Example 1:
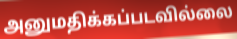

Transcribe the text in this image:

அனுமதிக்கப்படவில்லை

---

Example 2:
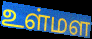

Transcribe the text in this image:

உள்மள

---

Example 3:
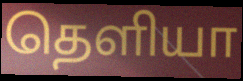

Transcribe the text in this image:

தெளியா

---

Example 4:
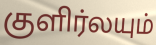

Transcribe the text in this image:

குளிர்லயும்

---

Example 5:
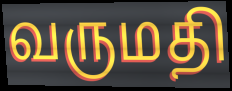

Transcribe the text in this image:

வருமதி